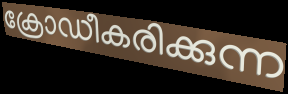
ക്രോഡീകരിക്കുന്ന